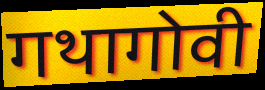
गथागोवी